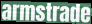
armstrade